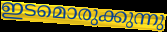
ഇടമൊരുക്കുന്നു